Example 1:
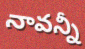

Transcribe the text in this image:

నావన్నీ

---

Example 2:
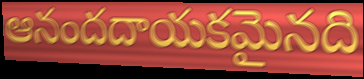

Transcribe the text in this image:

ఆనందదాయకమైనది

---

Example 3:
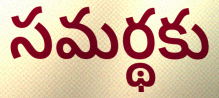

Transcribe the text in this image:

సమర్థకు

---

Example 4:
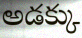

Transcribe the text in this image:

అడక్కు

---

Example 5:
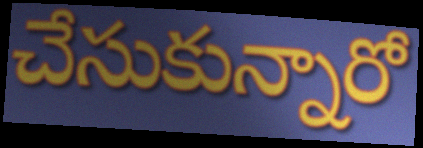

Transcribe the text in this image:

చేసుకున్నారో